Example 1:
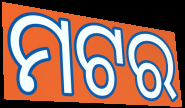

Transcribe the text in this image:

ମଟର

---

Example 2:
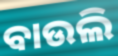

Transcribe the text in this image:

ବାଉଲି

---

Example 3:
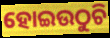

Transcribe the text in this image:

ହୋଇଉଠୁଚି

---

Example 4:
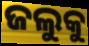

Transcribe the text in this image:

ଜଲୁକୁ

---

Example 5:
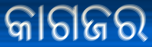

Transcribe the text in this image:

କାଗଜର